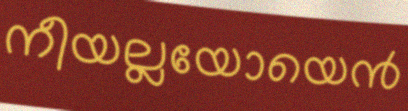
നീയല്ലയോയെൻ